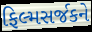
ફિલ્મસર્જકને